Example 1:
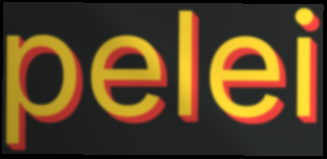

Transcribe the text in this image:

pelei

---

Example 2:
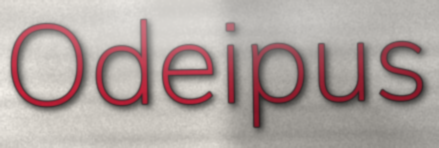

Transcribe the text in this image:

Odeipus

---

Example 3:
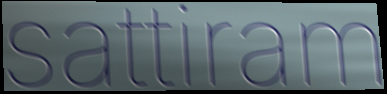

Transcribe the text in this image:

sattiram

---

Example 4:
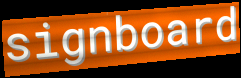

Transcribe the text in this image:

signboard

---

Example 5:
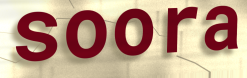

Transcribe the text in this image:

soora